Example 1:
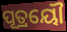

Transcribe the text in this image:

ପୂତ୍ରୟୌ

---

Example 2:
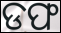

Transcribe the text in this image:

ଡଫ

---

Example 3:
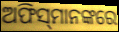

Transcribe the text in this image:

ଅଫିସ୍‌ମାନଙ୍କରେ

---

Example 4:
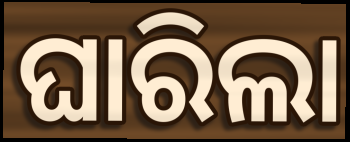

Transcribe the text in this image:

ଘାରିଲା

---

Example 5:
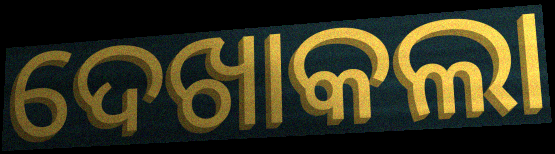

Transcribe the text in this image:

ଦେଖାକଲା